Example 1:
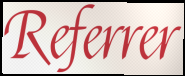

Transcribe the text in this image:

Referrer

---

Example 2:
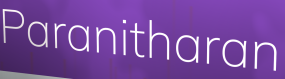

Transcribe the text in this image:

Paranitharan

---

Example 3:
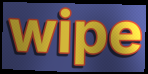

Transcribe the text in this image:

wipe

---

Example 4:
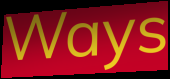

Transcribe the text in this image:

Ways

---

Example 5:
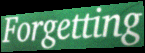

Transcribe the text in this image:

Forgetting